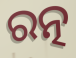
ରତ୍ନ